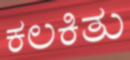
ಕಲಕಿತು